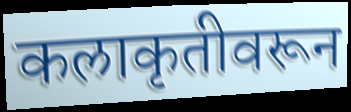
कलाकृतीवरून